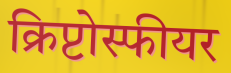
क्रिप्टोस्फीयर